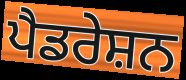
ਪੈਡਰੇਸ਼ਨ